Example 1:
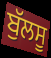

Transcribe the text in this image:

ਬੁੱਲਸੂ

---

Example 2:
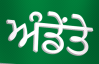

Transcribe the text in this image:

ਅੰਡੇਂਤੇ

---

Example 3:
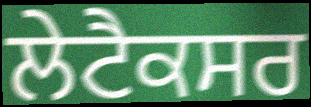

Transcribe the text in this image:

ਲੇਟੈਕਸਰ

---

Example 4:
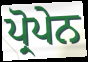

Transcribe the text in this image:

ਪ੍ਰੋਪੇਨ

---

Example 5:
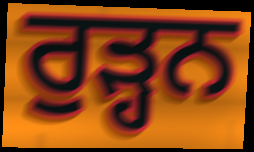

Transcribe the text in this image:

ਰੁੜ੍ਹਨ